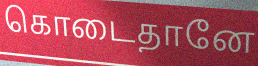
கொடைதானே